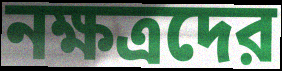
নক্ষত্রদের